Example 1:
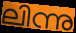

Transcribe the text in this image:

ലിന്നു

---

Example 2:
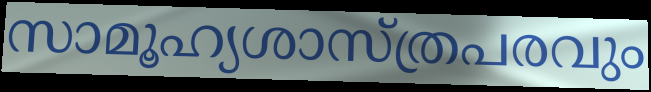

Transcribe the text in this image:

സാമൂഹ്യശാസ്ത്രപരവും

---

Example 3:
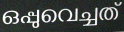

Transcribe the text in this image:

ഒപ്പുവെച്ചത്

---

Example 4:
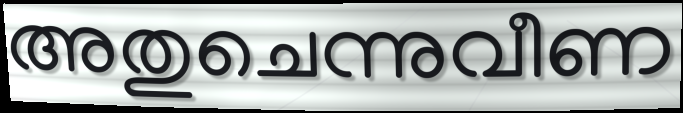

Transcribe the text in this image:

അതുചെന്നുവീണ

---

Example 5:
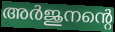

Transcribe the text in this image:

അർജുനന്റെ